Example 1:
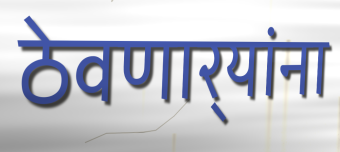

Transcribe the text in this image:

ठेवणार्‍यांना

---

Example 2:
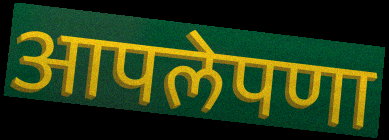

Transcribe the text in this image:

आपलेपणा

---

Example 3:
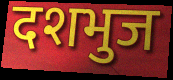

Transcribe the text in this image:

दशभुज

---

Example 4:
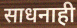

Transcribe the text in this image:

साधनाही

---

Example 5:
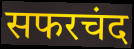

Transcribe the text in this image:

सफरचंद